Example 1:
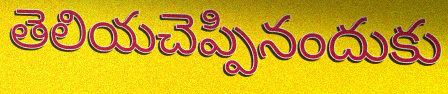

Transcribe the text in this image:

తెలియచెప్పినందుకు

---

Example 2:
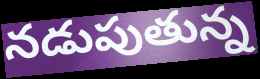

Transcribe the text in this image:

నడుపుతున్న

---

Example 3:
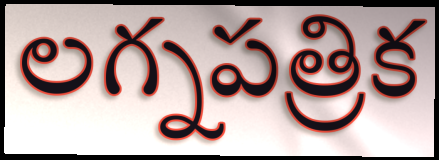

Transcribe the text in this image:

లగ్నపత్రిక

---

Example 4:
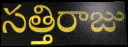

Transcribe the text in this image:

సత్తిరాజు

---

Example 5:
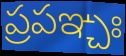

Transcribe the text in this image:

ప్రపఞ్చః